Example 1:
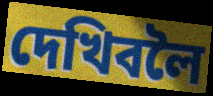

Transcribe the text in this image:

দেখিবলৈ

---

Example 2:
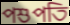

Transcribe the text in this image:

পশুপতি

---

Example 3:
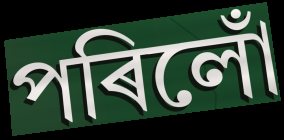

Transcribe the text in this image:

পৰিলোঁ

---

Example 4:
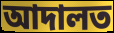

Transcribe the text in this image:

আদালত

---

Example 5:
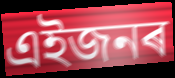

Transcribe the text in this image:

এইজনৰ